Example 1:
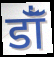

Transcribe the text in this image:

डॉँ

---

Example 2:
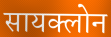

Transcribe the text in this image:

सायक्लोन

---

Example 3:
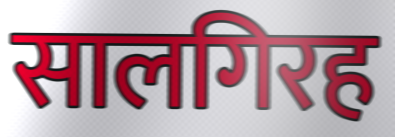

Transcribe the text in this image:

सालगिरह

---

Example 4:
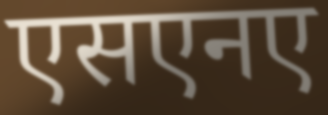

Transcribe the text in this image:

एसएनए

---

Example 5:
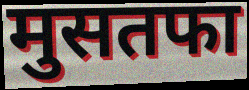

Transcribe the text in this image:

मुसतफा